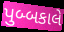
પુબ્બકાલે